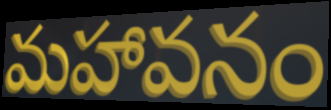
మహావనం